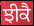
ਝੀਕੈ